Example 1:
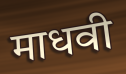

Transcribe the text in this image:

माधवी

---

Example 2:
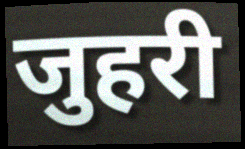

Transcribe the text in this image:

जुहरी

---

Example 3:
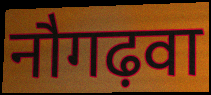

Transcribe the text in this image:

नौगढ़वा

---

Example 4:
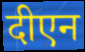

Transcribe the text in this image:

दीएन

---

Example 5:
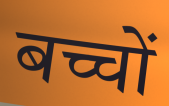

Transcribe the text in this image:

बच्‍चों